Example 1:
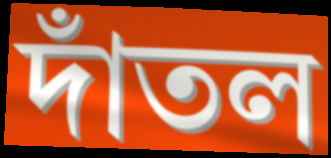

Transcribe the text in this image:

দাঁতল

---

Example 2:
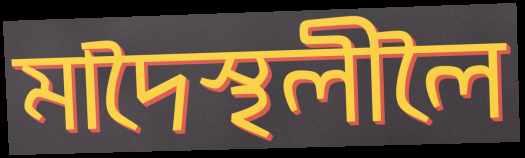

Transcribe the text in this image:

মাদৈস্থলীলৈ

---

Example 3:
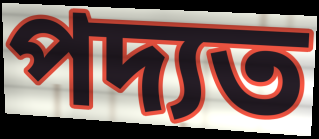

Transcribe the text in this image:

পদ্যত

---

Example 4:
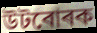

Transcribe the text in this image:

উটবোৰক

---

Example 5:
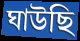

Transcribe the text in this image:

ঘাউছি